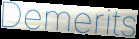
Demerits